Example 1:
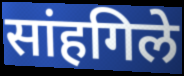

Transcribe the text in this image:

सांहगिले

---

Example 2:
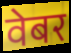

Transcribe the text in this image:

वेबर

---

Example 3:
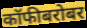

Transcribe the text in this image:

कॉफीबरोबर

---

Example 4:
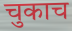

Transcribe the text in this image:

चुकाच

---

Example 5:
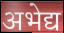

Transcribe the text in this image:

अभेद्य